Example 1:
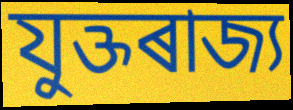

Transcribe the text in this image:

যুক্তৰাজ্য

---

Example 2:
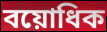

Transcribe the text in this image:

বয়োধিক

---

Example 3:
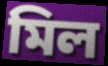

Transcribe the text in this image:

মিল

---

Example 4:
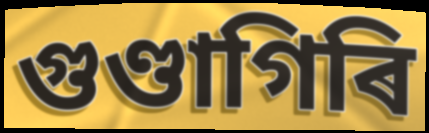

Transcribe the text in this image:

গুণ্ডাগিৰি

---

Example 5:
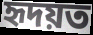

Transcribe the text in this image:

হৃদয়ত